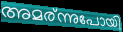
അമര്ന്നുപോയി